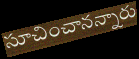
సూచించానన్నారు